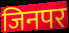
जिनपर